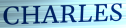
CHARLES